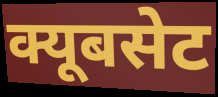
क्यूबसेट